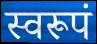
स्वरूपं